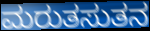
ಮರುತಸುತನ